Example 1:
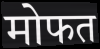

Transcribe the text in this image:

मोफत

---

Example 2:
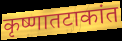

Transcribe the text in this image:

कृष्णातटाकांत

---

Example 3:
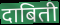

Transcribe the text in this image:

दाबिती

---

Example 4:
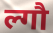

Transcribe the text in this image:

ल्गौ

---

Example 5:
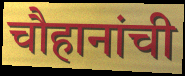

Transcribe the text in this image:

चौहानांची